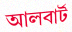
আলবার্ট